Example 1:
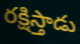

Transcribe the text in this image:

రక్షిస్తాడు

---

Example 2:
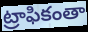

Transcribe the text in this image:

ట్రాఫికంతా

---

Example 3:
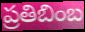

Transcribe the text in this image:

ప్రతిబింబ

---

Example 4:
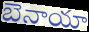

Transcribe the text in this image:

బెనాయా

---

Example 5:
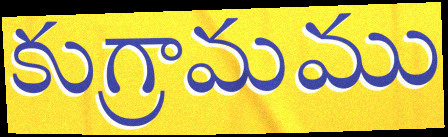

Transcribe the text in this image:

కుగ్రామము